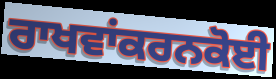
ਰਾਖਵਾਂਕਰਨਕੋਈ